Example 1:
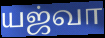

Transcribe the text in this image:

யஜ்வா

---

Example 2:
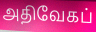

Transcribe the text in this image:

அதிவேகப்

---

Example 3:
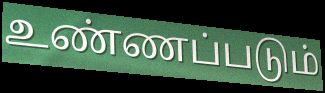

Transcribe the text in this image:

உண்ணப்படும்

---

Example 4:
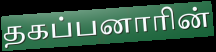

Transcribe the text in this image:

தகப்பனாரின்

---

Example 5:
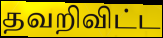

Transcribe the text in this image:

தவறிவிட்ட